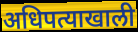
अधिपत्याखाली